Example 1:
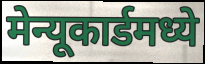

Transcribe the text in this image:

मेन्यूकार्डमध्ये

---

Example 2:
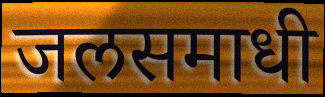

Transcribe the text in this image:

जलसमाधी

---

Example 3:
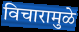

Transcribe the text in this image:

विचारामुळे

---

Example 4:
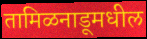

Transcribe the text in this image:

तामिळनाडूमधील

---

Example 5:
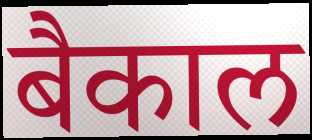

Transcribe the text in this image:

बैकाल